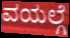
ವಯಲ್ಗೆ